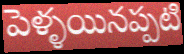
పెళ్ళయినప్పటి